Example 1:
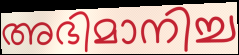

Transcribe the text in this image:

അഭിമാനിച്ച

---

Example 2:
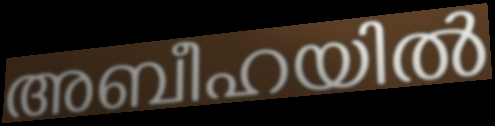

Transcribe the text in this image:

അബീഹയിൽ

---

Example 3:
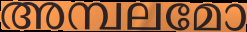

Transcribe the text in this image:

അമ്പലമോ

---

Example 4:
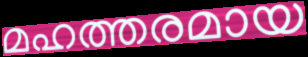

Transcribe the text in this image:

മഹത്തരമായ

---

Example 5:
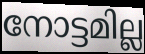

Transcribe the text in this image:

നോട്ടമില്ല